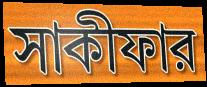
সাকীফার